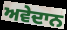
ਅਵੇਦਾਨ